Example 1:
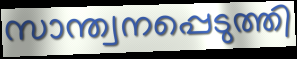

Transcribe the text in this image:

സാന്ത്വനപ്പെടുത്തി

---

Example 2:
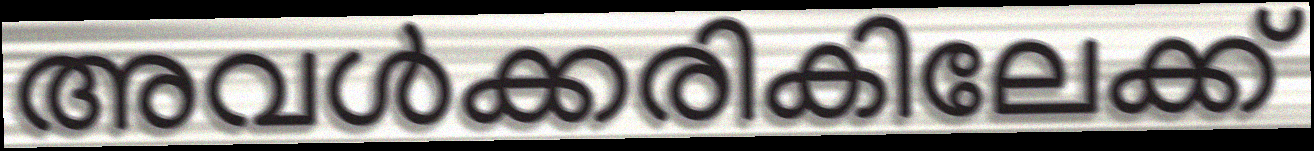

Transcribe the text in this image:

അവൾക്കരികിലേക്ക്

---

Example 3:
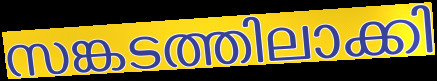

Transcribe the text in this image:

സങ്കടത്തിലാക്കി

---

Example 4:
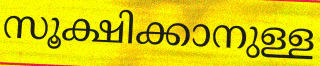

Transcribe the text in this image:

സൂക്ഷിക്കാനുള്ള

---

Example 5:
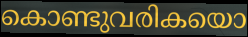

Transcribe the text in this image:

കൊണ്ടുവരികയൊ